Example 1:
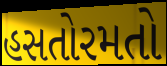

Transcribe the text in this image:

હસતોરમતો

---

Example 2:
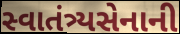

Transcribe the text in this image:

સ્વાતંત્ર્યસેનાની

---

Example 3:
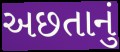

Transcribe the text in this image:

અછતાનું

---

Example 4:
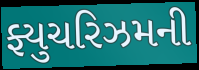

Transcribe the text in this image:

ફ્યુચરિઝમની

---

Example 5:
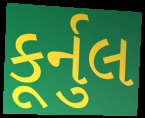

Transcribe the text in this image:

કૂર્નુલ